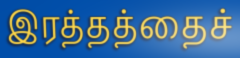
இரத்தத்தைச்